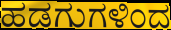
ಹಡಗುಗಳಿಂದ